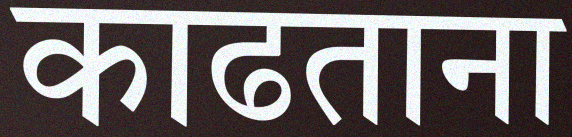
काढताना